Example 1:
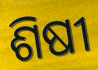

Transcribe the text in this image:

ଶିଷୀ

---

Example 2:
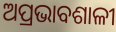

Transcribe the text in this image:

ଅପ୍ରଭାବଶାଳୀ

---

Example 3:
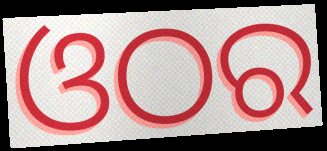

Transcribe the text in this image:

ଓଠର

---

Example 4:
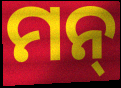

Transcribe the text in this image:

ମନ୍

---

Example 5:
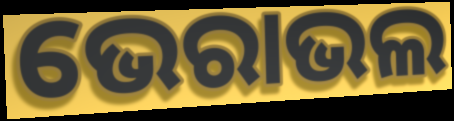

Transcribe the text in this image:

ଭେରାଭଲ